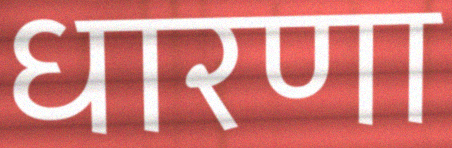
धारणा